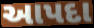
આપદા